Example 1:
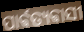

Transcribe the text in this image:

ପାର୍ଵତ୍ୟଵାସୀ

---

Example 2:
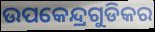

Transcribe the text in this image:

ଉପକେନ୍ଦ୍ରଗୁଡିକର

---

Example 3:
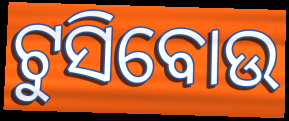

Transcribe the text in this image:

ଟୁସିବୋଉ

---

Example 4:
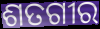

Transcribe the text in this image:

ଶତଗୀର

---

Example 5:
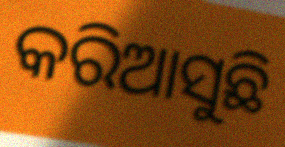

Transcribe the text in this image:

କରିଆସୁଛି